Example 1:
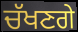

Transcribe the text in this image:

ਚੱਖਣਗੇ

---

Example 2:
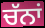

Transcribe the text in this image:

ਚੱਨਾਂ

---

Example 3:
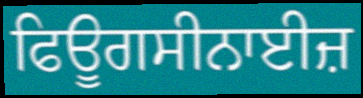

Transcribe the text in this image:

ਫਿਊਗਸੀਨਾਈਜ਼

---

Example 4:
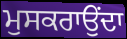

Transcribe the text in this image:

ਮੁਸਕਰਾਉਂਦਾ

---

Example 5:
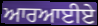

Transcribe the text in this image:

ਆਰਆਈਏ